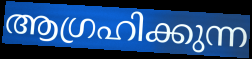
ആഗ്രഹിക്കുന്ന